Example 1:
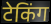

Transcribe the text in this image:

टेकिंग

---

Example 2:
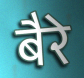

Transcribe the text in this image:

बैरे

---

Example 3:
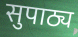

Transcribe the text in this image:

सुपाठ्य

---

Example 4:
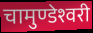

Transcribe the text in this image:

चामुण्डेश्वरी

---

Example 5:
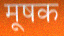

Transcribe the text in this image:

मूषक